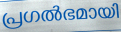
പ്രഗൽഭമായി